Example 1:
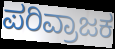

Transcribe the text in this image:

ಪರಿವ್ರಾಜಕ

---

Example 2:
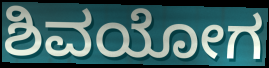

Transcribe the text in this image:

ಶಿವಯೋಗ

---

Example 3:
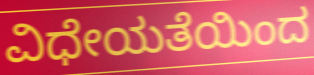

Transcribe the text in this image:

ವಿಧೇಯತೆಯಿಂದ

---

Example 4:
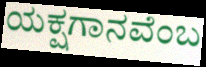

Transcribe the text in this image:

ಯಕ್ಷಗಾನವೆಂಬ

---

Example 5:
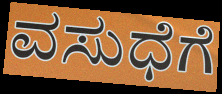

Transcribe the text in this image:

ವಸುಧೆಗೆ